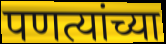
पणत्यांच्या